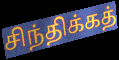
சிந்திக்கத்